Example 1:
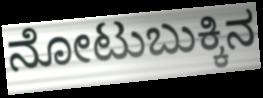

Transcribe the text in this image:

ನೋಟುಬುಕ್ಕಿನ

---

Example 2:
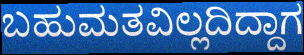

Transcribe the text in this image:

ಬಹುಮತವಿಲ್ಲದಿದ್ದಾಗ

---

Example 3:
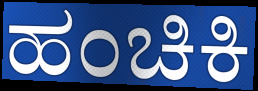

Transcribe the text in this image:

ಹಂಚಿಕಿ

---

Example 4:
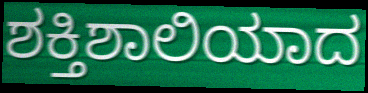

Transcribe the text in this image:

ಶಕ್ತಿಶಾಲಿಯಾದ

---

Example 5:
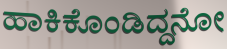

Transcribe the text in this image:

ಹಾಕಿಕೊಂಡಿದ್ದನೋ